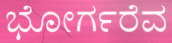
ಭೋರ್ಗರೆವ